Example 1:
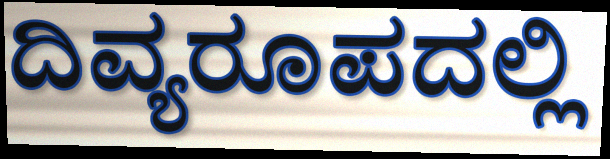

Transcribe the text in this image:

ದಿವ್ಯರೂಪದಲ್ಲಿ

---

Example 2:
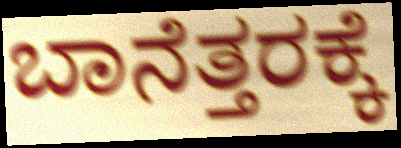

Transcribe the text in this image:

ಬಾನೆತ್ತರಕ್ಕೆ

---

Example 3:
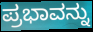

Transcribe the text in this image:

ಪ್ರಭಾವನ್ನು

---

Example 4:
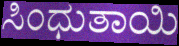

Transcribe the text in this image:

ಸಿಂಧುತಾಯಿ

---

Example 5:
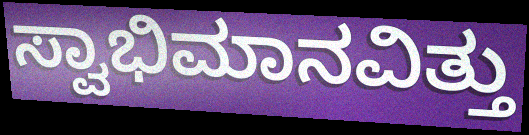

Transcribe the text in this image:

ಸ್ವಾಭಿಮಾನವಿತ್ತು